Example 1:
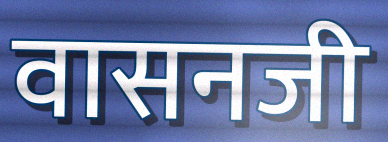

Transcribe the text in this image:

वासनजी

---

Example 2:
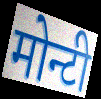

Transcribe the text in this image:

मोन्टी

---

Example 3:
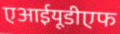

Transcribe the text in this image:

एआईयूडीएफ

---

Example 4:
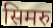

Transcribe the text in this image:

सिमरु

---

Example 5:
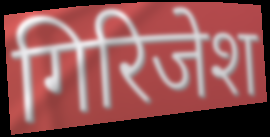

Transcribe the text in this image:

गिरिजेश